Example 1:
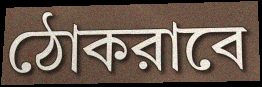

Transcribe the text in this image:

ঠোকরাবে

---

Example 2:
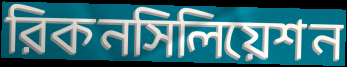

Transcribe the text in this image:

রিকনসিলিয়েশন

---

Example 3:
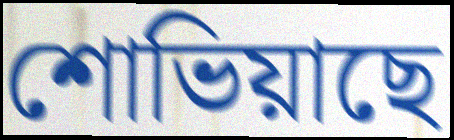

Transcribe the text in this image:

শোভিয়াছে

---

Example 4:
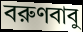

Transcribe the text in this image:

বরুণবাবু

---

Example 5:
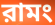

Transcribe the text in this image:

রামং